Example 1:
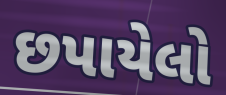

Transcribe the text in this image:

છપાયેલો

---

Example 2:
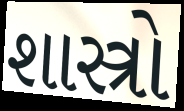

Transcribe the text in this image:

શાસ્ત્રો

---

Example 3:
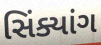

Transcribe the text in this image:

સિંક્યાંગ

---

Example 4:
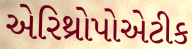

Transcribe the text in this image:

એરિથ્રોપોએટીક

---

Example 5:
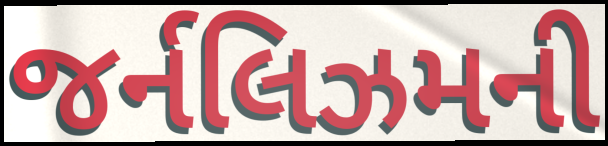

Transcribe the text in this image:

જર્નલિઝમની